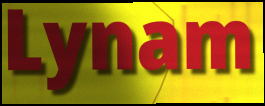
Lynam